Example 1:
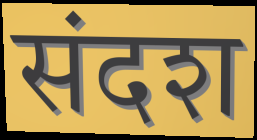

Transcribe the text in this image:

संदश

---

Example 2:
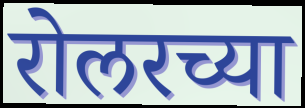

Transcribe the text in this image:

रोलरच्या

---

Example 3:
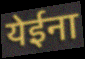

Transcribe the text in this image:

येईना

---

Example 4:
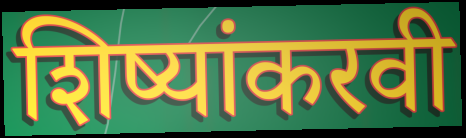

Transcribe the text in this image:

शिष्यांकरवी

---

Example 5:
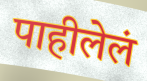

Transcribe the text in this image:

पाहीलेलं